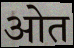
ओत